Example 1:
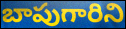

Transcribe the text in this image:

బాపుగారిని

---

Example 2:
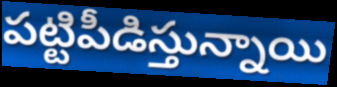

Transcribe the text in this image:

పట్టిపీడిస్తున్నాయి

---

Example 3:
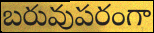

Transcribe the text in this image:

బరువుపరంగా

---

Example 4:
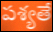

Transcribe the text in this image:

పశ్యతే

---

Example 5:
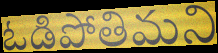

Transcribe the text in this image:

ఓడిపోతిమని